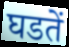
घडतें